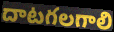
దాటగలగాలి